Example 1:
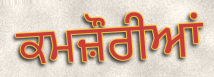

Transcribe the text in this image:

ਕਮਜ਼ੌਰੀਆਂ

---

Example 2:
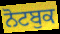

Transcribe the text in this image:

ਨੋਟਬੁਕ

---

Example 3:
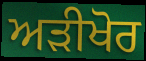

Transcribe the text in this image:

ਅੜੀਖੋਰ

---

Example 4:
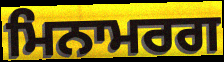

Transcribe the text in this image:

ਮਿਨਾਮਰਗ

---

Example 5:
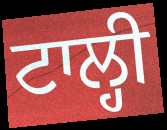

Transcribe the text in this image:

ਟਾਲ੍ਹੀ